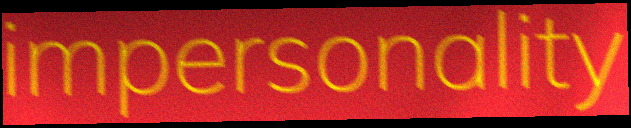
impersonality